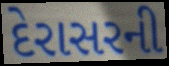
દેરાસરની